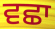
ਵਛਾ